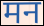
मन